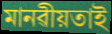
মানৱীয়তাই